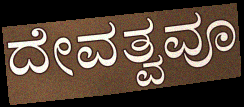
ದೇವತ್ವವೂ